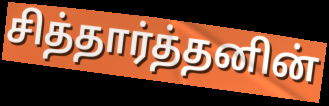
சித்தார்த்தனின்